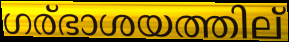
ഗര്ഭാശയത്തില്